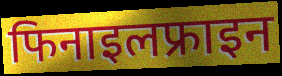
फिनाइलफ्राइन